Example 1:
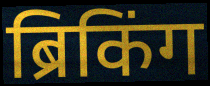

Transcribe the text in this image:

ब्रिकिंग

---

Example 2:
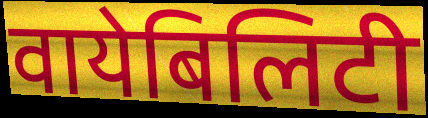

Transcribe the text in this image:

वायेबिलिटी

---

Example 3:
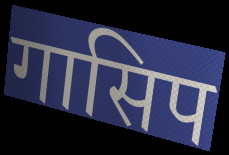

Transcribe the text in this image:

गासिप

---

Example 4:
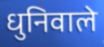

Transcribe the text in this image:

धुनिवाले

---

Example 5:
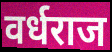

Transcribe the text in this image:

वर्धराज